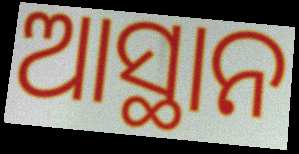
ଆସ୍ଥାନ